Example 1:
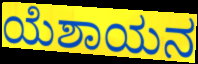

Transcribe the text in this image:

ಯೆಶಾಯನ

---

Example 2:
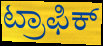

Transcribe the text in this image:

ಟ್ರಾಫಿಕ್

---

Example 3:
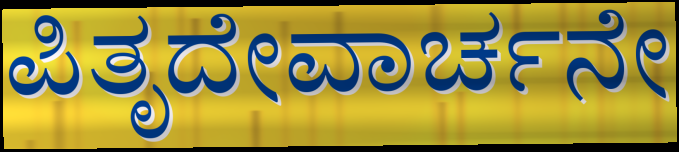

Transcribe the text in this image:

ಪಿತೃದೇವಾರ್ಚನೇ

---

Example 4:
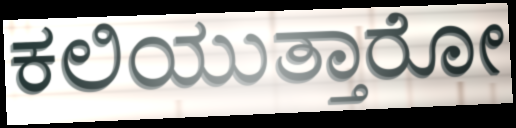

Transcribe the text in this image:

ಕಲಿಯುತ್ತಾರೋ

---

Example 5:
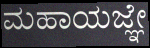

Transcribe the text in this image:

ಮಹಾಯಜ್ಞೇ